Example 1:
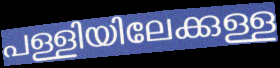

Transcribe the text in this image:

പള്ളിയിലേക്കുള്ള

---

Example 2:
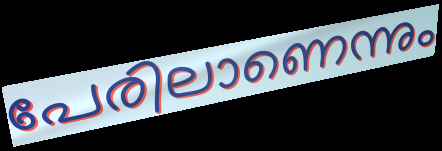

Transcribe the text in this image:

പേരിലാണെന്നും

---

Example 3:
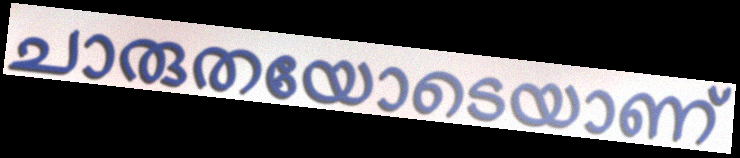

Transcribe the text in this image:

ചാരുതയോടെയാണ്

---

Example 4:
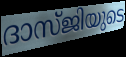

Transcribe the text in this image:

ദാസ്ജിയുടെ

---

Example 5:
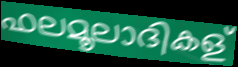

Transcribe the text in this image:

ഫലമൂലാദികള്